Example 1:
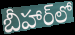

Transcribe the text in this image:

బీహార్‌లో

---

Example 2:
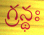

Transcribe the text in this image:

గ్రన్థః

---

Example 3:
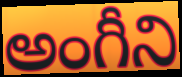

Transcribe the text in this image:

అంగీని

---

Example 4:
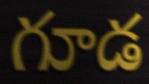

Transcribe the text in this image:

గూడ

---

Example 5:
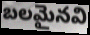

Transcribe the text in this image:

బలమైనవి